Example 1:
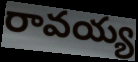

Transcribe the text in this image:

రావయ్య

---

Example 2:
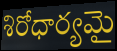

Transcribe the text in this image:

శిరోధార్యమై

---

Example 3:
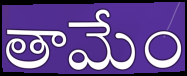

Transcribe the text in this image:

తామేం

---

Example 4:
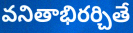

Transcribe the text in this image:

వనితాభిరర్చితే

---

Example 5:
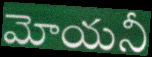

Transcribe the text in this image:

మోయనీ